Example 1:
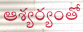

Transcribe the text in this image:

ఆశ్యర్యంతో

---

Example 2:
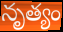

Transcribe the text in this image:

నృత్యం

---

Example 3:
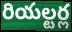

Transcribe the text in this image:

రియల్టర్ల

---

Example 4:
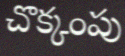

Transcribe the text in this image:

చొక్కంపు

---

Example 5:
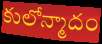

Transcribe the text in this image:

కులోన్మాదం